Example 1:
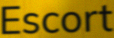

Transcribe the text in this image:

Escort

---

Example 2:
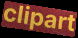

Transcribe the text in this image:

clipart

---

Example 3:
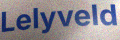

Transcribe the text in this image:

Lelyveld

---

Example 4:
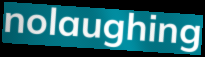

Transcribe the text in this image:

nolaughing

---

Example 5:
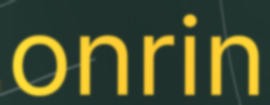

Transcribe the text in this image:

onrin